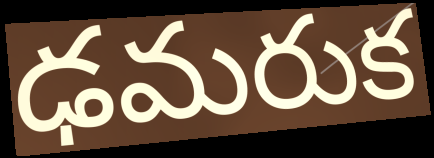
ఢమరుక